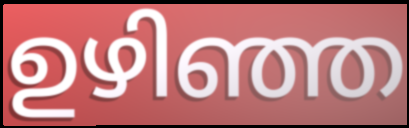
ഉഴിഞ്ഞ